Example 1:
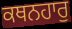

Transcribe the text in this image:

ਕਥਨਹਾਰੁ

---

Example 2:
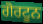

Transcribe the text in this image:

ਗੋਰਟੂਨ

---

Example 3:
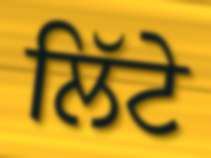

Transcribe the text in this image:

ਲਿੱਟੇ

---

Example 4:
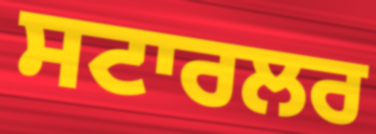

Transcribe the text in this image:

ਸਟਾਰਲਰ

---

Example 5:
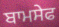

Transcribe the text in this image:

ਬਾਮਸੇਫ